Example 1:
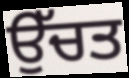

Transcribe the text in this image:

ਉੱਚਤ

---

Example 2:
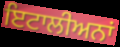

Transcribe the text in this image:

ਇਟਾਲੀਅਨਾਂ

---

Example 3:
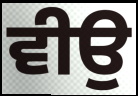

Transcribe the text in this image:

ਵੀਉ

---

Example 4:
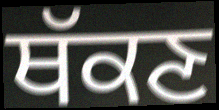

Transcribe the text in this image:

ਥੱਕਣ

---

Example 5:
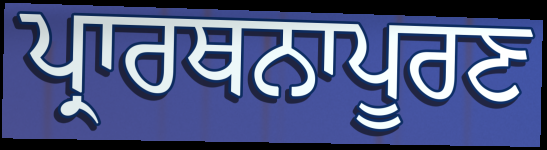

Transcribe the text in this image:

ਪ੍ਰਾਰਥਨਾਪੂਰਣ